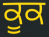
ਕੂਕ